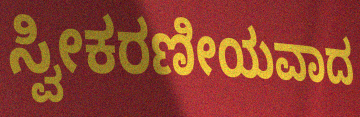
ಸ್ವೀಕರಣೀಯವಾದ